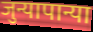
जुन्यापान्या